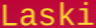
Laski